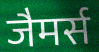
जैमर्स